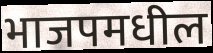
भाजपमधील